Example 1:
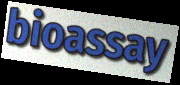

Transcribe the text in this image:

bioassay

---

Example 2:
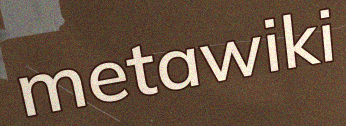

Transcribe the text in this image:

metawiki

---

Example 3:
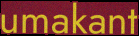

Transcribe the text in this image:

umakant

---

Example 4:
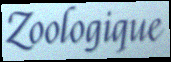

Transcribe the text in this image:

Zoologique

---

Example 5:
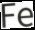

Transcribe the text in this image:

Fe